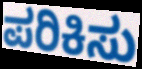
ಪರಿಕಿಸು